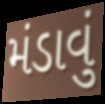
મંડાવું